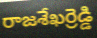
రాజశేఖర్రెడ్డి